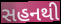
સહનથી